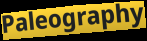
Paleography